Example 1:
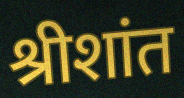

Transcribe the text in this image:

श्रीशांत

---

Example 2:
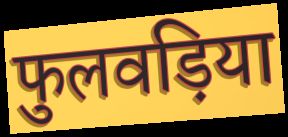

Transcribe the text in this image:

फुलवड़िया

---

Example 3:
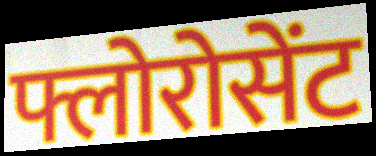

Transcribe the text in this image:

फ्लोरोसेंट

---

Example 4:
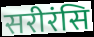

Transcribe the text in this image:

सरीरंसि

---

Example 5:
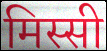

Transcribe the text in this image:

मिस्सी